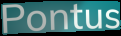
Pontus